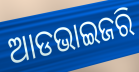
ଆଡଭାଇଜରି